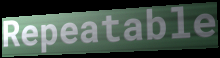
Repeatable